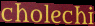
cholechi